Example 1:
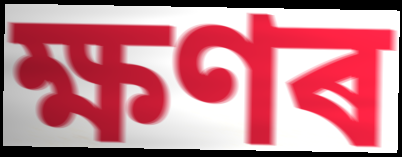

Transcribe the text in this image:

ক্ষণৰ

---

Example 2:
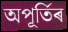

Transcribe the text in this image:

অপূৰ্তিৰ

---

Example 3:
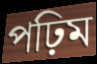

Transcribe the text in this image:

পঢ়িম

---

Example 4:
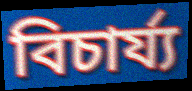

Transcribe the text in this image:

বিচাৰ্য্য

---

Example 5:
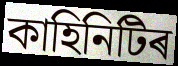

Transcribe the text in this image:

কাহিনিটিৰ